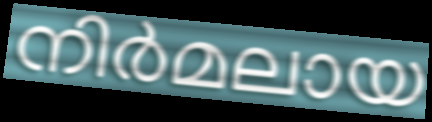
നിർമലായ